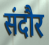
संदौर